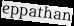
eppathan